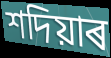
শদিয়াৰ